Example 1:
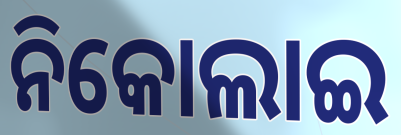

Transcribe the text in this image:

ନିକୋଲାଇ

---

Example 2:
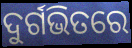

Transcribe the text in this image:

ଦୁର୍ଗଭିତରେ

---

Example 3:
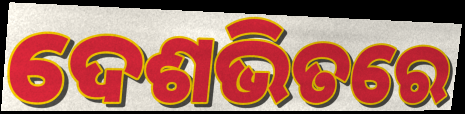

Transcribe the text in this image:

ଦେଶଭିତରେ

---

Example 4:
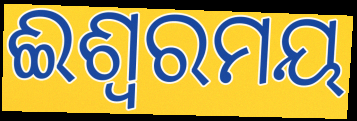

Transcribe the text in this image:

ଈଶ୍ଵରମୟ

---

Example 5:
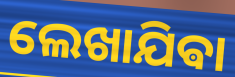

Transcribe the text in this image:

ଲେଖାଯିଵା